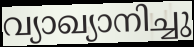
വ്യാഖ്യാനിച്ചു